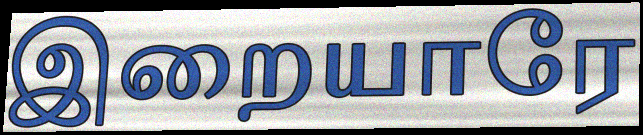
இறையாரே